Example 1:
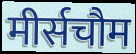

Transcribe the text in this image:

मीर्सचौम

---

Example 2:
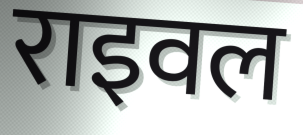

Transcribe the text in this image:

राइवल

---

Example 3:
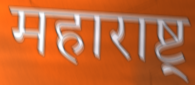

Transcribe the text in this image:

महाराष्ट्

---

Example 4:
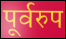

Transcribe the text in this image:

पूर्वरुप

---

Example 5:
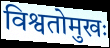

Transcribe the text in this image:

विश्वतोमुखः